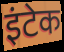
इंटेक